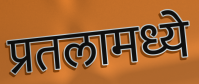
प्रतलामध्ये